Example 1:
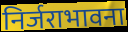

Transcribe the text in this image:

निर्जराभावना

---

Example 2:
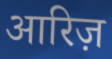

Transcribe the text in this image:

आरिज़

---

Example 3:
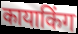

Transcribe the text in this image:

कायाकिंग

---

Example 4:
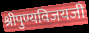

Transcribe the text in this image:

श्रीपुण्यविजयजी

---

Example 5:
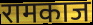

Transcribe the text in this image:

रामकाज